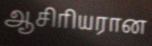
ஆசிரியரான